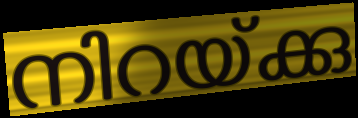
നിറയ്‌ക്കു